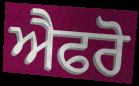
ਐਫਰੋ